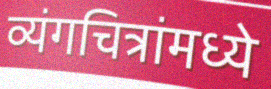
व्यंगचित्रांमध्ये